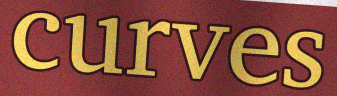
curves